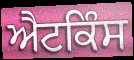
ਐਟਕਿੰਸ